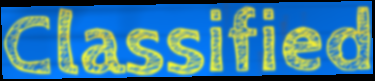
Classified